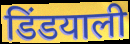
डिंडयाली